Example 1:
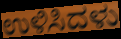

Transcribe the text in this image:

ಉಳಿಸಿದಳು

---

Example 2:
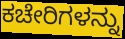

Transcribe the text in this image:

ಕಚೇರಿಗಳನ್ನು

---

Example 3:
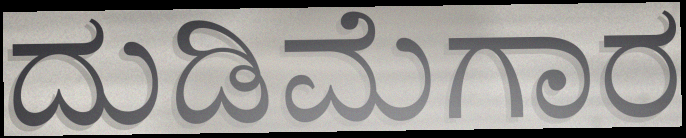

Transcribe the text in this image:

ದುಡಿಮೆಗಾರ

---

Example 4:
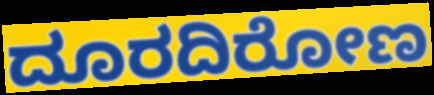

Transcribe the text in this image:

ದೂರದಿರೋಣ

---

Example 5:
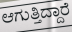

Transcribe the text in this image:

ಆಗುತ್ತಿದ್ದಾರೆ